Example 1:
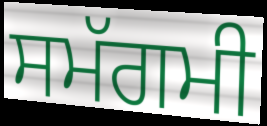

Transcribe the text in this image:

ਸਮੱਗਮੀ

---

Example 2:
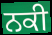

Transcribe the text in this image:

ਨਕੀ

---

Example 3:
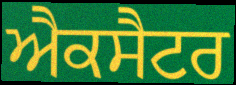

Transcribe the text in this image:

ਐਕਸੈਟਰ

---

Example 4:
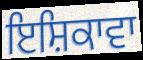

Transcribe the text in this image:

ਇਸ਼ਿਕਾਵਾ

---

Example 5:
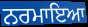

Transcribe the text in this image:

ਨਰਮਾਇਆ